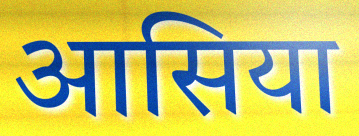
आसिया